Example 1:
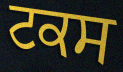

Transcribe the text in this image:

ਟਕਸ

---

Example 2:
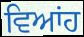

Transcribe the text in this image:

ਵਿਆਂਹ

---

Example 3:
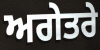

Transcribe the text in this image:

ਅਗੇਤਰੇ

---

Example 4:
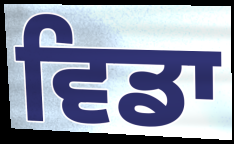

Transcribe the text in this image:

ਵਿਡਾ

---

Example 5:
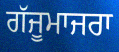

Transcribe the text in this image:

ਗੱਜੂਮਾਜਰਾ